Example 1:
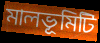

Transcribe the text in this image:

মালভূমিটি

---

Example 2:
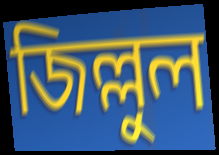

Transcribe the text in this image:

জিল্লুল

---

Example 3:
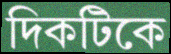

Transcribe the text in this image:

দিকটিকে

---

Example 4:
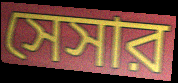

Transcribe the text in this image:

সেসার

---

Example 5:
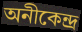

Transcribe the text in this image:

অনীকেন্দ্র